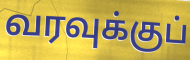
வரவுக்குப்